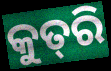
କୁତ୍‌ରି